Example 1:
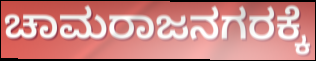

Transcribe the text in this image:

ಚಾಮರಾಜನಗರಕ್ಕೆ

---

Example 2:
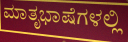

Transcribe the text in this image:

ಮಾತೃಭಾಷೆಗಳಲ್ಲಿ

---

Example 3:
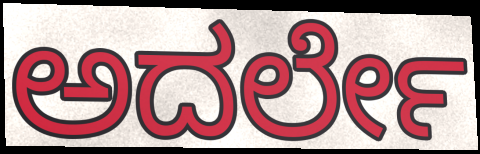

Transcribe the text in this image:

ಅದರ್ಲೇ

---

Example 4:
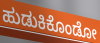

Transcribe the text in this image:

ಹುಡುಕಿಕೊಂಡೋ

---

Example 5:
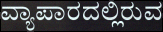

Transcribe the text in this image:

ವ್ಯಾಪಾರದಲ್ಲಿರುವ